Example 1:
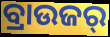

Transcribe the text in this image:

ବ୍ରାଉଜର୍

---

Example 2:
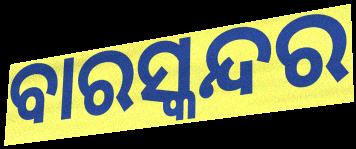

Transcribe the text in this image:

ବାରସ୍କନ୍ଦର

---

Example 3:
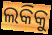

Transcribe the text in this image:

ଲକିକୁ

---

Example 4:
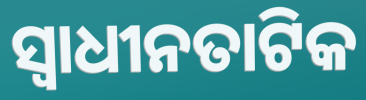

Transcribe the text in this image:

ସ୍ୱାଧୀନତାଟିକ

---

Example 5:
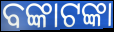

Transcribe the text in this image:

ବଙ୍କାଟଙ୍କା